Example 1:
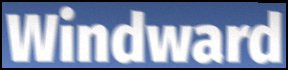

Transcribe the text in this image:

Windward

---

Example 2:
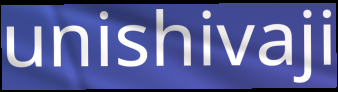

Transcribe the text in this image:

unishivaji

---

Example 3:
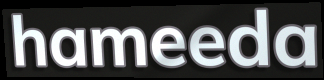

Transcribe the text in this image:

hameeda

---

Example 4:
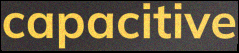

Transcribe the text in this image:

capacitive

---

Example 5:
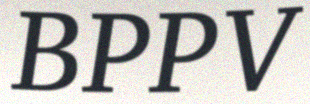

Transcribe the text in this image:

BPPV